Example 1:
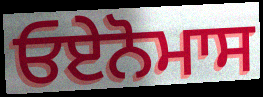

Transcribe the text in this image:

ਓਏਨੋਮਾਸ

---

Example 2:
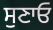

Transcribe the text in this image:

ਸੁਣਾਓ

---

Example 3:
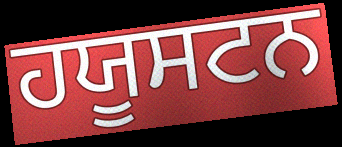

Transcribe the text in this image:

ਹਯੂਸਟਨ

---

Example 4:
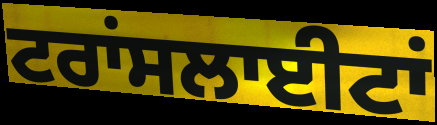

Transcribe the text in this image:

ਟਰਾਂਸਲਾਈਟਾਂ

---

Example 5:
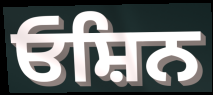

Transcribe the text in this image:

ਓਸ਼ਿਨ